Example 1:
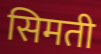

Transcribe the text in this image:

सिमती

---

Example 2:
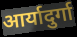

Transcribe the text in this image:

आर्यादुर्गा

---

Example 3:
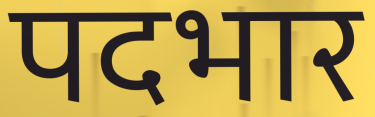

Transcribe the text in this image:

पदभार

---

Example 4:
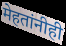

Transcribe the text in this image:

मेहतांनीही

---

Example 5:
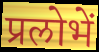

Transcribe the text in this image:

प्रलोभें